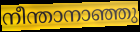
നീന്താനാഞ്ഞു